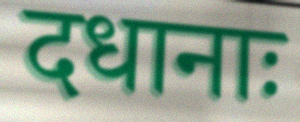
दधानाः